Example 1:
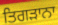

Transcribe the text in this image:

ਤਿਗੜਾਨਾ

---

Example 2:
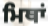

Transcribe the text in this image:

ਮਿਥਾਂ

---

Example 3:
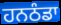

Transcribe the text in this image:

ਹਨਠੰਡਾ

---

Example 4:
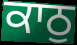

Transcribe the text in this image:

ਕਾਠੁ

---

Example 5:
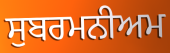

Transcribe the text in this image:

ਸੁਬਰਮਨੀਅਮ